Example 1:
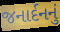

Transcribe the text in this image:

જનાર્દનનું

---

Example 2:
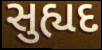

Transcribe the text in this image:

સુહ્યદ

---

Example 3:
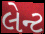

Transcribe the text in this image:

લેન્ટ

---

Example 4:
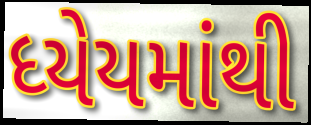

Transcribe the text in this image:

ધ્યેયમાંથી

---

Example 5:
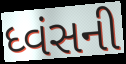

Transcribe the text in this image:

ધ્વંસની